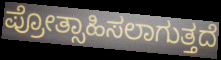
ಪ್ರೋತ್ಸಾಹಿಸಲಾಗುತ್ತದೆ